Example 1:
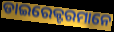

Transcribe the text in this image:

ଡାଇରେକ୍ଟରମାନେ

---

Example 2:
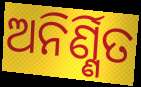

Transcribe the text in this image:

ଅନିର୍ଣ୍ଣିତ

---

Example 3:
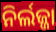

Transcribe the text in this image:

ନିର୍ଲଜ୍ଜା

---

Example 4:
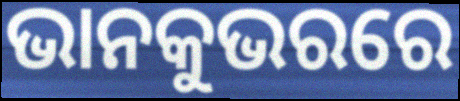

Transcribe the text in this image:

ଭାନକୁଭରରେ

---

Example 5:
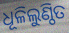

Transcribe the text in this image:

ଧୂଳିଲୁଣ୍ଠିତ